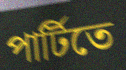
পার্টিতে